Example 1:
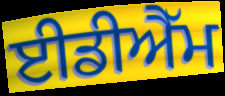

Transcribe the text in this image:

ਈਡੀਐੱਮ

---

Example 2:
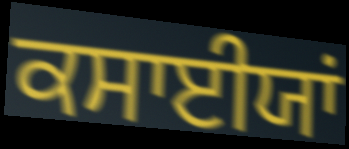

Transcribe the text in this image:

ਕਸਾਈਯਾਂ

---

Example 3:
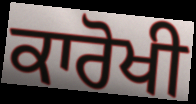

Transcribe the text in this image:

ਕਾਰੋਖੀ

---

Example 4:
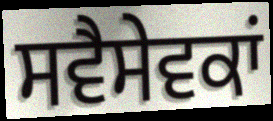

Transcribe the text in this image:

ਸਵੈਸੇਵਕਾਂ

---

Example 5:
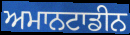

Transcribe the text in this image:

ਅਮਾਨਟਾਡੀਨ